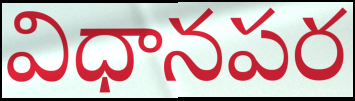
విధానపర